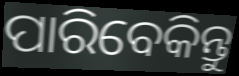
ପାରିବେକିନ୍ତୁ